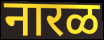
नारळ